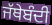
ਜੱਥੇਬੰਦੀ